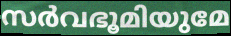
സർവഭൂമിയുമേ